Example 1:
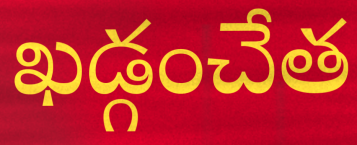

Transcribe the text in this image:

ఖడ్గంచేత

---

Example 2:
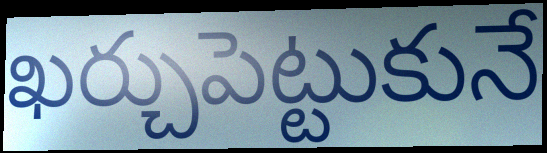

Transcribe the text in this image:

ఖర్చుపెట్టుకునే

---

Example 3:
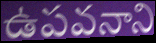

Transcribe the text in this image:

ఉపవనాని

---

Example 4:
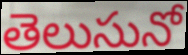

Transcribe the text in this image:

తెలుసునో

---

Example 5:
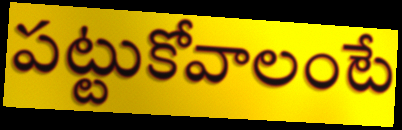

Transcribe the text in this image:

పట్టుకోవాలంటే